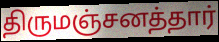
திருமஞ்சனத்தார்